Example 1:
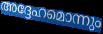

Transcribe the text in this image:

അദ്ദേഹമൊന്നും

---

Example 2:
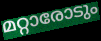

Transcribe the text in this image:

മറ്റാരോടും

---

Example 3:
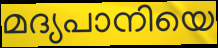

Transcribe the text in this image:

മദ്യപാനിയെ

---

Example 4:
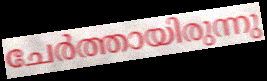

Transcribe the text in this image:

ചേർത്തായിരുന്നു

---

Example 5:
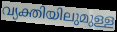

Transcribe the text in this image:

വ്യക്തിയിലുമുള്ള